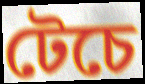
টেচে